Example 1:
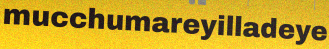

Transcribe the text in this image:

mucchumareyilladeye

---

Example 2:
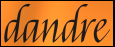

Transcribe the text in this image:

dandre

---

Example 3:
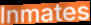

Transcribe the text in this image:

Inmates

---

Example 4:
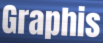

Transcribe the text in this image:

Graphis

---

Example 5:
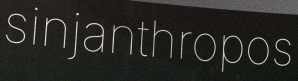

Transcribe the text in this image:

sinjanthropos